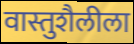
वास्तुशैलीला